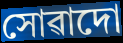
সোৱাদো